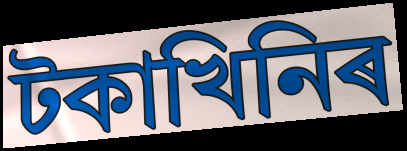
টকাখিনিৰ